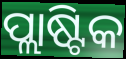
ପ୍ଲାଷ୍ଟିକ